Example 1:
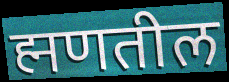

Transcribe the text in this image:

ह्मणतील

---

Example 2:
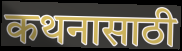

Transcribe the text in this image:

कथनासाठी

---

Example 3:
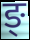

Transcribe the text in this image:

ङ्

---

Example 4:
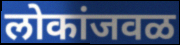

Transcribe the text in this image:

लोकांजवळ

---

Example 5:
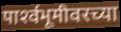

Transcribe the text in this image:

पार्श्वभूमीवरच्या